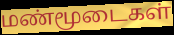
மண்மூடைகள்